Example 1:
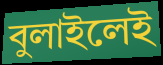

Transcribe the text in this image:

বুলাইলেই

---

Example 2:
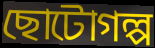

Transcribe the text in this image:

ছোটোগল্প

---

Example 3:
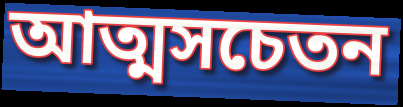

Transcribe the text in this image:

আত্মসচেতন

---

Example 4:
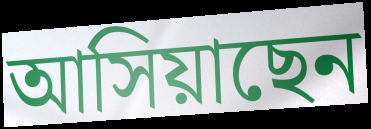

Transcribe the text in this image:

আসিয়াছেন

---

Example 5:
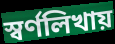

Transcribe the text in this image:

স্বর্ণলিখায়